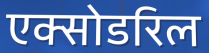
एक्सोडरिल